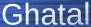
Ghatal